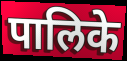
पालिके